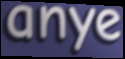
anye